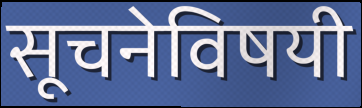
सूचनेविषयी